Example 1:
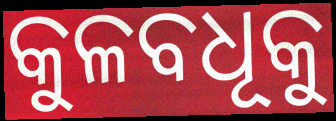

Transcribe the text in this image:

କୁଳବଧୂକୁ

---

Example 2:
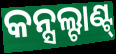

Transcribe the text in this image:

କନ୍ସଲ୍ଟାଣ୍ଟ୍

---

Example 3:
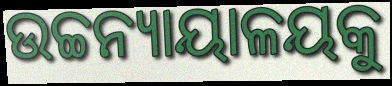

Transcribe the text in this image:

ଉଚ୍ଚନ୍ୟାୟାଳୟକୁ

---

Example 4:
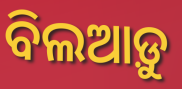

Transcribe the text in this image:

ବିଲଆଡ଼ୁ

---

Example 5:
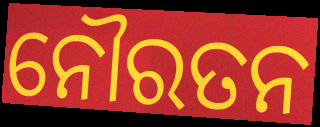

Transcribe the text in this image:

ନୌରତନ